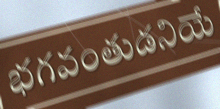
భగవంతుడనియే